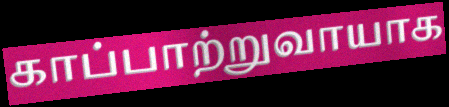
காப்பாற்றுவாயாக